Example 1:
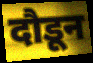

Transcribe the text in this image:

दौडून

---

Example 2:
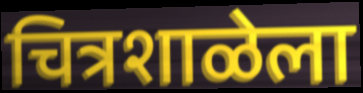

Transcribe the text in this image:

चित्रशाळेला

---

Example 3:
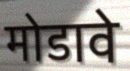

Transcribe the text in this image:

मोडावे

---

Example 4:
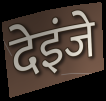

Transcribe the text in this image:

देइंजे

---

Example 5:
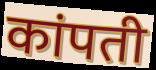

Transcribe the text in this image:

कांपती